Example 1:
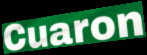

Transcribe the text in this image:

Cuaron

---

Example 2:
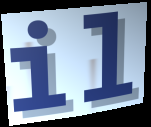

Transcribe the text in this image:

il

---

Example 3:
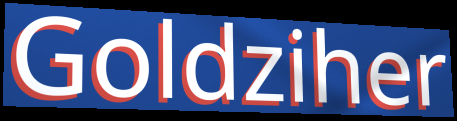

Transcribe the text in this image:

Goldziher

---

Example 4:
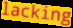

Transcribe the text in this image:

lacking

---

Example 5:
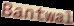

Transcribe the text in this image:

Bantwal